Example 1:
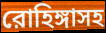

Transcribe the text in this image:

রোহিঙ্গাসহ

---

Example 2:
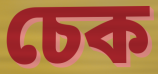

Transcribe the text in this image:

চেক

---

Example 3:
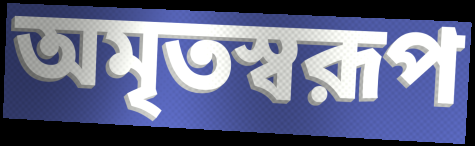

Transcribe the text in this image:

অমৃতস্বরূপ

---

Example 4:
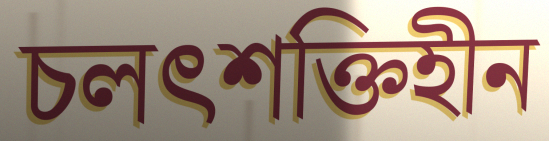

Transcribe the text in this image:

চলৎশক্তিহীন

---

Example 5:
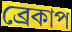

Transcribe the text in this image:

ব্রেকাপ